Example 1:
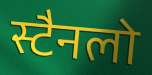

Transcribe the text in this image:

स्टैनलो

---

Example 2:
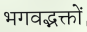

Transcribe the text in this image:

भगवद्भक्तों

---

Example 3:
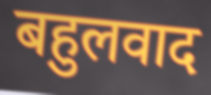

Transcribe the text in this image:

बहुलवाद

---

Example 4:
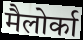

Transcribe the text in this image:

मैलोर्का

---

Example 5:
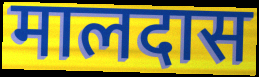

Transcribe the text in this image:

मालदास